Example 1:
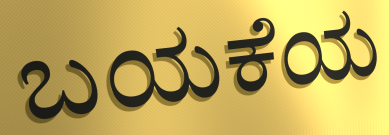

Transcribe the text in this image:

ಬಯಕೆಯ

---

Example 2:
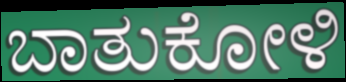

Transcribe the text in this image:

ಬಾತುಕೋಳಿ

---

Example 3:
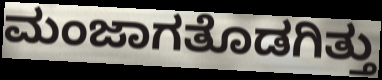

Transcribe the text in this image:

ಮಂಜಾಗತೊಡಗಿತ್ತು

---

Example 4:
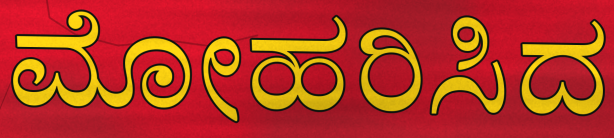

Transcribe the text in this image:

ಮೋಹರಿಸಿದ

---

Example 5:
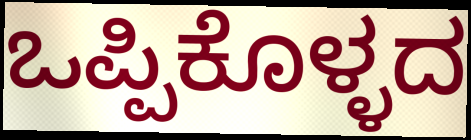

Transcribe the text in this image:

ಒಪ್ಪಿಕೊಳ್ಳದ